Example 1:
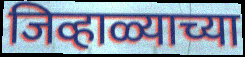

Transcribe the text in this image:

जिव्हाळ्याच्या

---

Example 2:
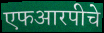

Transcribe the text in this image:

एफआरपीचे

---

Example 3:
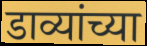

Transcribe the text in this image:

डाव्यांच्या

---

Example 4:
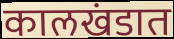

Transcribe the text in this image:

कालखंडात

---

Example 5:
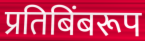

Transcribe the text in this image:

प्रतिबिंबरूप